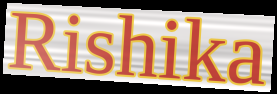
Rishika